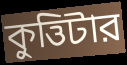
কুত্তিটার